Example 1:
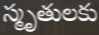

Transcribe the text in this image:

స్మృతులకు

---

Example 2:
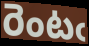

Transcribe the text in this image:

రెంటఁ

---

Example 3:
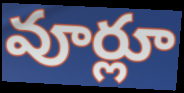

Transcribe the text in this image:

వూర్లూ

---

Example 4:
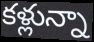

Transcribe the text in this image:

కళ్లున్నా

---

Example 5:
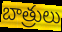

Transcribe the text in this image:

బాత్రులు